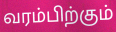
வரம்பிற்கும்